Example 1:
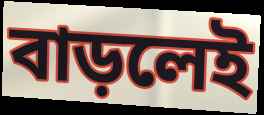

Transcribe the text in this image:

বাড়লেই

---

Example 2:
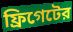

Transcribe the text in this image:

ফ্রিগেটের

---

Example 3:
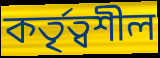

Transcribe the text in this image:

কর্তৃত্বশীল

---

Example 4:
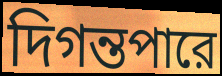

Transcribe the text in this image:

দিগন্তপারে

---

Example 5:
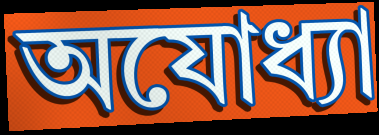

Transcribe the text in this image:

অযোধ্যা